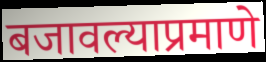
बजावल्याप्रमाणे